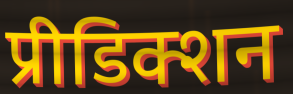
प्रीडिक्शन